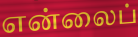
என்லைப்